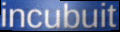
incubuit